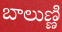
బాలుణ్ణి